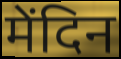
मेंदिन